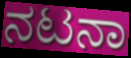
ನಟನಾ